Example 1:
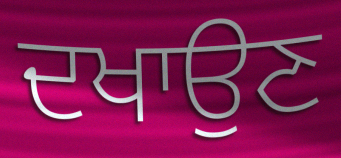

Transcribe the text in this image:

ਦਖਾਉਣ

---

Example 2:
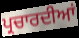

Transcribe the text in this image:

ਪ੍ਰਚਾਰਦੀਆਂ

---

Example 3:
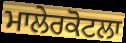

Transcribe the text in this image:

ਮਾਲੇਰਕੋਟਲਾ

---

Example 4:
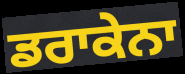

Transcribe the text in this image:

ਡਰਾਕੇਨਾ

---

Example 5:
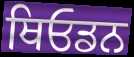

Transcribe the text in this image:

ਥਿਓਡਨ